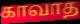
காவாத